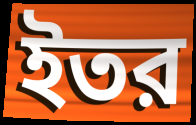
ইতর